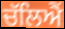
ਚੱਲਿਐਂ